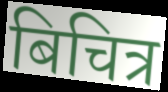
बिचित्र